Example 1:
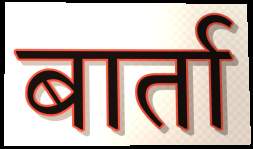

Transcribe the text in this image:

बार्ता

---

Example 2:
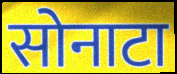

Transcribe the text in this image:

सोनाटा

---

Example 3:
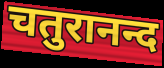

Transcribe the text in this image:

चतुरानन्द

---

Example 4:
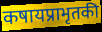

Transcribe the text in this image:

कषायप्राभृतकी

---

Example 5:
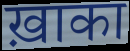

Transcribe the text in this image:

ख़ाका